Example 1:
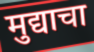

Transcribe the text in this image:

मुद्याचा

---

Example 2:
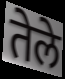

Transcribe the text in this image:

तेले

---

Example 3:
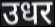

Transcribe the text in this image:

उधर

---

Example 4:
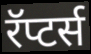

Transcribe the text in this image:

रॅप्टर्स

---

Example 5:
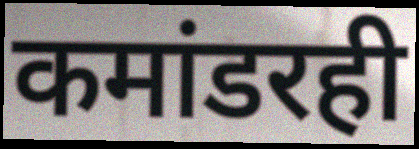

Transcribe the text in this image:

कमांडरही